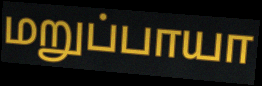
மறுப்பாயா